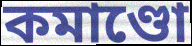
কমাণ্ডো